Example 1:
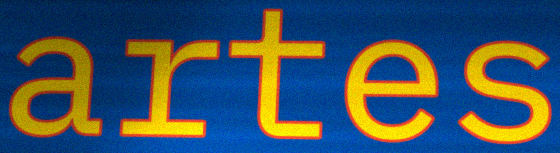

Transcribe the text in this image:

artes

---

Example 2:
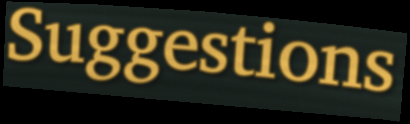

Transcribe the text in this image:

Suggestions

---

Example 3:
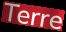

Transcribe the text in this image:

Terre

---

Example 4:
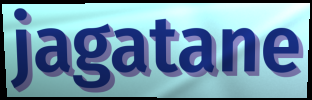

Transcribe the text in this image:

jagatane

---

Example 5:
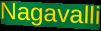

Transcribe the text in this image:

Nagavalli